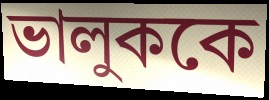
ভালুককে